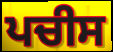
ਪਚੀਸ